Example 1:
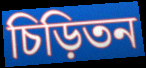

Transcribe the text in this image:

চিড়িতন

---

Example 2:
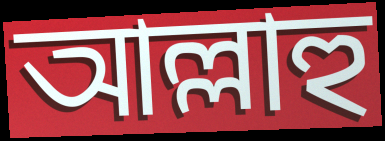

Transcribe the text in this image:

আল্লাহু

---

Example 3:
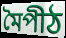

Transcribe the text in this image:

মৈপীঠ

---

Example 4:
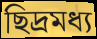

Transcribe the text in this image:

ছিদ্রমধ্য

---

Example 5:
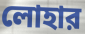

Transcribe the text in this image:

লোহার